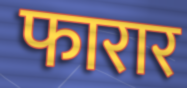
फारार